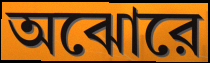
অঝোরে